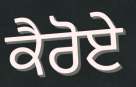
ਕੈਰੋਏ